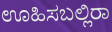
ಊಹಿಸಬಲ್ಲಿರಾ